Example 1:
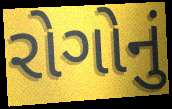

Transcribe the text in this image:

રોગોનું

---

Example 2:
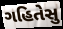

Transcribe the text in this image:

ગહિતેસુ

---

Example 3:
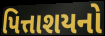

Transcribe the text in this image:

પિત્તાશયનો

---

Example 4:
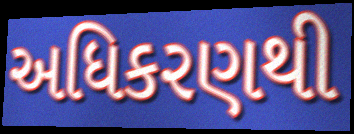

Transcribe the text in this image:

અધિકરણથી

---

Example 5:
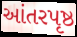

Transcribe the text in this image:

આંતરપૃષ્ઠ